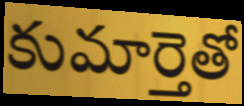
కుమార్తెతో